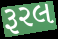
રૂરલ